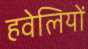
हवेलियों